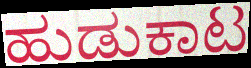
ಹುಡುಕಾಟ